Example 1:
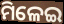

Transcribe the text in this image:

ମିଳେଇ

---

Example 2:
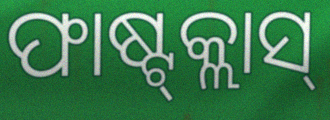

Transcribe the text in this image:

ଫାଷ୍ଟ୍‍କ୍ଲାସ୍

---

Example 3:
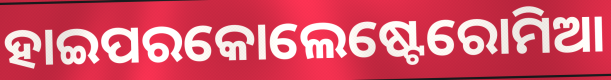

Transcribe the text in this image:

ହାଇପରକୋଲେଷ୍ଟେରୋମିଆ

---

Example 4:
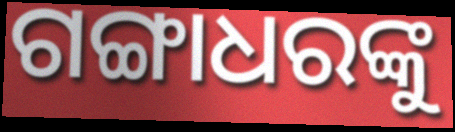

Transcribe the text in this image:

ଗଙ୍ଗାଧରଙ୍କୁ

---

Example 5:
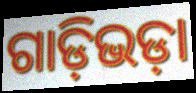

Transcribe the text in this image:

ଗାଡ଼ିଭଡ଼ା